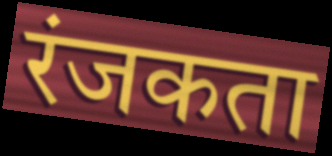
रंजकता